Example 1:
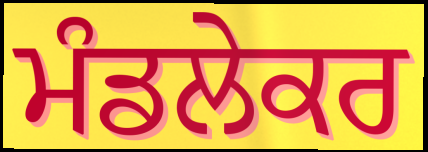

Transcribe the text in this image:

ਮੰਡਲੇਕਰ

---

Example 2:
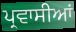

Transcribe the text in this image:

ਪ੍ਰਵਾਸੀਆਂ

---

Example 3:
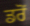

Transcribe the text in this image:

ਡਰੋਂ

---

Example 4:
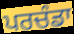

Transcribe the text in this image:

ਪਰਚੰਡਾ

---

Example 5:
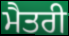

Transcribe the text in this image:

ਮੈਤਰੀ